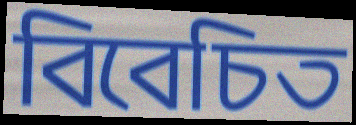
বিবেচিত